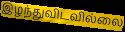
இழந்துவிடவில்லை